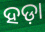
ହଡ଼ା